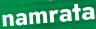
namrata